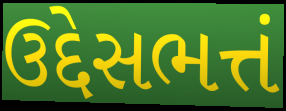
ઉદ્દેસભત્તં